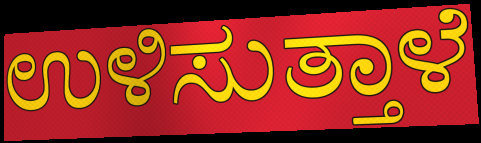
ಉಳಿಸುತ್ತಾಳೆ